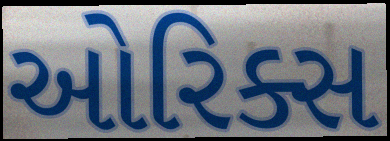
ઓરિક્સ